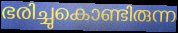
ഭരിച്ചുകൊണ്ടിരുന്ന